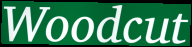
Woodcut